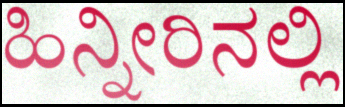
ಹಿನ್ನೀರಿನಲ್ಲಿ